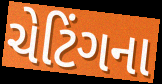
ચેટિંગના